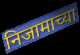
निजामाच्या